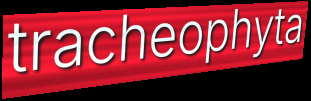
tracheophyta